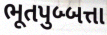
ભૂતપુબ્બત્તા